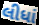
લીધાં